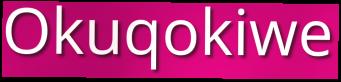
Okuqokiwe